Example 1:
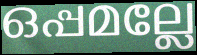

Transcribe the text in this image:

ഒപ്പമല്ലേ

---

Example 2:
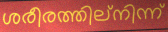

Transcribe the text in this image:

ശരീരത്തില്നിന്ന്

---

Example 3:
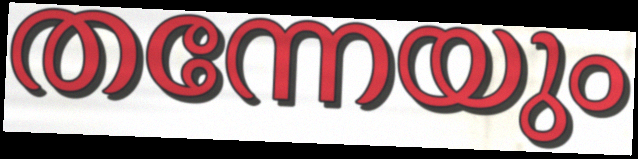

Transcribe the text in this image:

തന്നേയും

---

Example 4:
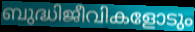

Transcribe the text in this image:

ബുദ്ധിജീവികളോടും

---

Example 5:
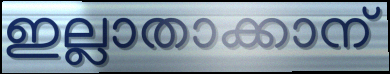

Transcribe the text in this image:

ഇല്ലാതാക്കാന്